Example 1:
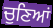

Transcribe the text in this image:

ਚੁਣਿਆਂ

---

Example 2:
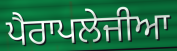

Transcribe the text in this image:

ਪੈਰਾਪਲੇਜੀਆ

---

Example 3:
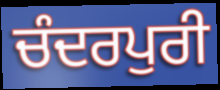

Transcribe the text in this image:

ਚੰਦਰਪੁਰੀ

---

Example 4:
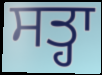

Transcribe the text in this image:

ਸਤ੍ਹਾ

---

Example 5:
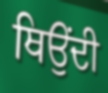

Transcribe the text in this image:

ਥਿਉਂਦੀ